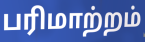
பரிமாற்றம்